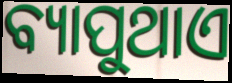
ବ୍ୟାପୁଥାଏ